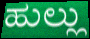
ಹುಲ್ಲು